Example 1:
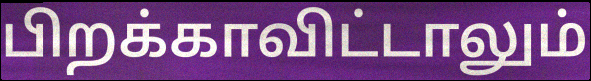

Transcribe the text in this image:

பிறக்காவிட்டாலும்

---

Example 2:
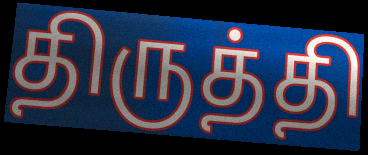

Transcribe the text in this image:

திருத்தி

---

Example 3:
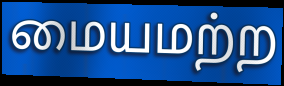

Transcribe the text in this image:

மையமற்ற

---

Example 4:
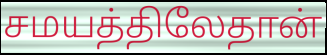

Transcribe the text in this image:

சமயத்திலேதான்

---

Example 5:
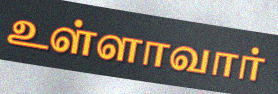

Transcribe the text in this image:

உள்ளாவார்